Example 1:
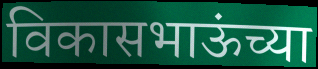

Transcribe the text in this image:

विकासभाऊंच्या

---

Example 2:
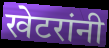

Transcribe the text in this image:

खेटरांनी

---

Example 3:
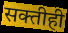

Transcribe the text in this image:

सक्तीही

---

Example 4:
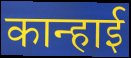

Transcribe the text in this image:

कान्हाई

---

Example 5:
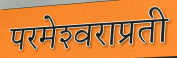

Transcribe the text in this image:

परमेश्वराप्रती